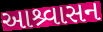
આશ્ર્વાસન